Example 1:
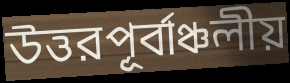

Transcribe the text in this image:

উত্তরপূর্বাঞ্চলীয়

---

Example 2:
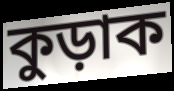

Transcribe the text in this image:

কুড়াক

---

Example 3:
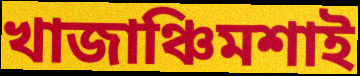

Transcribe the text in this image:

খাজাঞ্চিমশাই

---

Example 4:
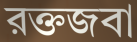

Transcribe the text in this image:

রক্তজবা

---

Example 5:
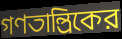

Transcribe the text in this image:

গণতান্ত্রিকের